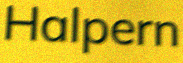
Halpern